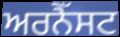
ਅਰਨੈੱਸਟ